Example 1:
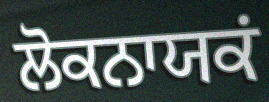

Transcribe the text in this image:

ਲੋਕਨਾਯਕਂ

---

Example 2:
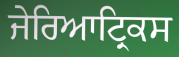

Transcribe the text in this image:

ਜੇਰਿਆਟ੍ਰਿਕਸ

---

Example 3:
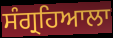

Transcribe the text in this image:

ਸੰਗ੍ਰਹਿਆਲਾ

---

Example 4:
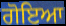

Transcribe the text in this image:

ਗੋਇਆ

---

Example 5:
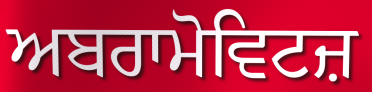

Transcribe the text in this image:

ਅਬਰਾਮੋਵਿਟਜ਼